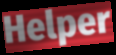
Helper